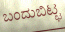
ಬಂದುಬಿಟ್ಟ